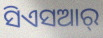
ସିଏସଆର୍